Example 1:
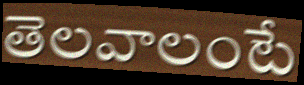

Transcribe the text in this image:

తెలవాలంటే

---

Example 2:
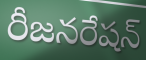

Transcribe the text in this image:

రీజనరేషన్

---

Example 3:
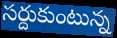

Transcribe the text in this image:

సర్దుకుంటున్న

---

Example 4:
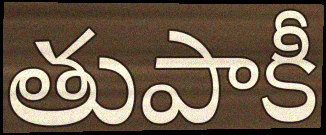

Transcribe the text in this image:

తుపాకీ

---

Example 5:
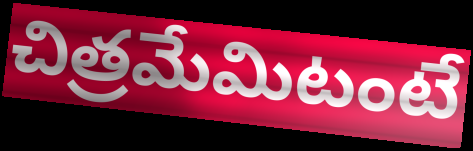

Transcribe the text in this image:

చిత్రమేమిటంటే